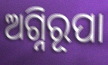
ଅଗ୍ନିରୂପା